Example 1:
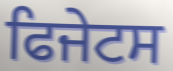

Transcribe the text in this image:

ਫਿਜੇਟਸ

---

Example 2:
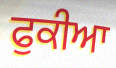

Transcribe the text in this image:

ਫੁਕੀਆ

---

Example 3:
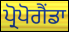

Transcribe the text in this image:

ਪ੍ਰੋਪੋਗੈਂਡਾ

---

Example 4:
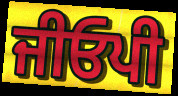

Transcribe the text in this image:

ਜੀਓਪੀ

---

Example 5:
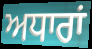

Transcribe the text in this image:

ਅਧਾਰਾਂ